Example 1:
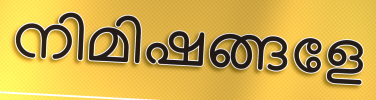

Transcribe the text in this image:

നിമിഷങ്ങളേ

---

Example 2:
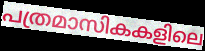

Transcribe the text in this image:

പത്രമാസികകളിലെ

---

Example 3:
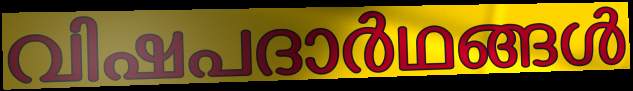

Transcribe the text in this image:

വിഷപദാർഥങ്ങൾ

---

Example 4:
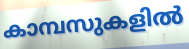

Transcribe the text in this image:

കാമ്പസുകളിൽ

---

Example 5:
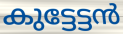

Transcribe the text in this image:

കുട്ടേട്ടൻ